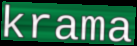
krama